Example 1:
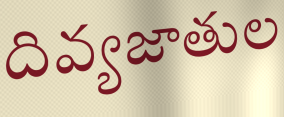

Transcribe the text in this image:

దివ్యజాతుల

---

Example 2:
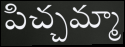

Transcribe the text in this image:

పిచ్చమ్మా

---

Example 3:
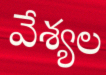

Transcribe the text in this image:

వేశ్యల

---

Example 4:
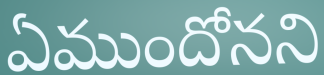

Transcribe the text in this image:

ఏముందోనని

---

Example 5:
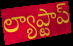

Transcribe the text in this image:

ల్యాప్టాప్